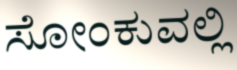
ಸೋಂಕುವಲ್ಲಿ